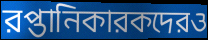
রপ্তানিকারকদেরও